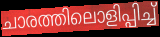
ചാരത്തിലൊളിപ്പിച്ച്